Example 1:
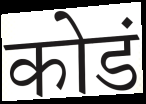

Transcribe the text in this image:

कोडं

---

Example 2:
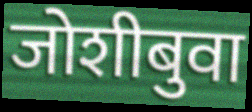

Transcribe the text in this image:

जोशीबुवा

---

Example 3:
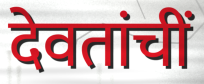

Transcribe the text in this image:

देवतांचीं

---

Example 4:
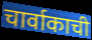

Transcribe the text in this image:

चार्वाकाची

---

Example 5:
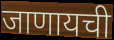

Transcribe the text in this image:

जाणायची